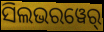
ସିଲଭରୱେର୍